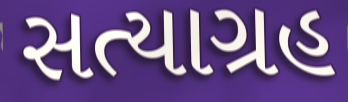
સત્‍યાગ્રહ